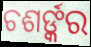
ଚଶର୍ଙ୍କର